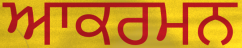
ਆਕਰਮਨ